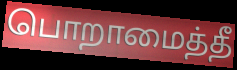
பொறாமைத்தீ